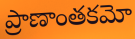
ప్రాణాంతకమో